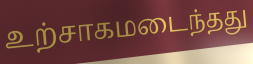
உற்சாகமடைந்தது